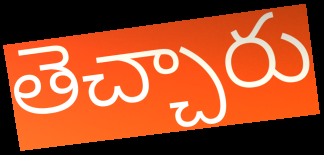
తెచ్చారు